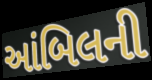
આંબિલની